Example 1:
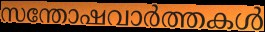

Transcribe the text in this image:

സന്തോഷവാർത്തകൾ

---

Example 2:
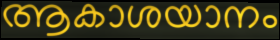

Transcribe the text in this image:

ആകാശയാനം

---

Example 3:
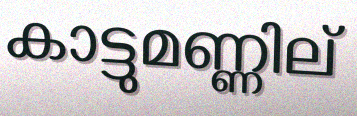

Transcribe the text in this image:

കാട്ടുമണ്ണില്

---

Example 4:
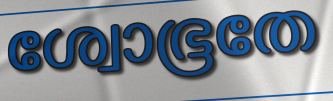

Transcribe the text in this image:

ശ്വോഭൂതേ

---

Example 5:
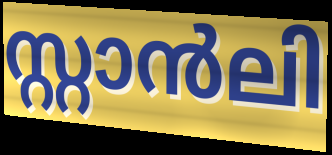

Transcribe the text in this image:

സ്റ്റാൻലി